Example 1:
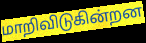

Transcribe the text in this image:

மாறிவிடுகின்றன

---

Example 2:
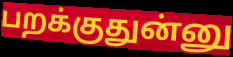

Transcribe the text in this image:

பறக்குதுன்னு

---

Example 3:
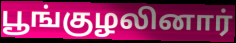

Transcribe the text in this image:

பூங்குழலினார்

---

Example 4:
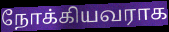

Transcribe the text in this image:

நோக்கியவராக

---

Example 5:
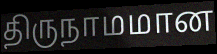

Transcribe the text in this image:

திருநாமமான